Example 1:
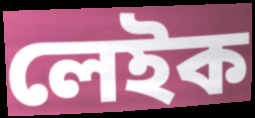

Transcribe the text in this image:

লেইক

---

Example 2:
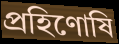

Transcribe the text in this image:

প্রহিণোষি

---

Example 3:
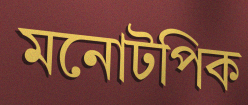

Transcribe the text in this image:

মনোটপিক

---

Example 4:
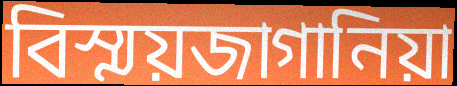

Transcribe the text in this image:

বিস্ময়জাগানিয়া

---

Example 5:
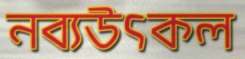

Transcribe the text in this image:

নব্যউৎকল